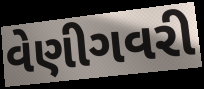
વેણીગવરી